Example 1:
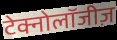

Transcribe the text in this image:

टेक्नोलॉजीज़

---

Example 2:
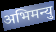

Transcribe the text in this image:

अभिमन्यु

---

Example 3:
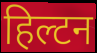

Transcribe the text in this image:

हिल्टन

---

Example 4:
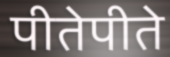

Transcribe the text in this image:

पीतेपीते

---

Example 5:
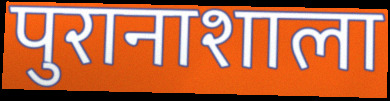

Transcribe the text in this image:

पुरानाशाला